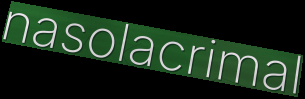
nasolacrimal